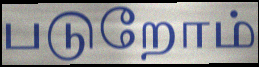
படுறோம்